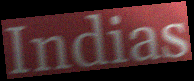
Indias